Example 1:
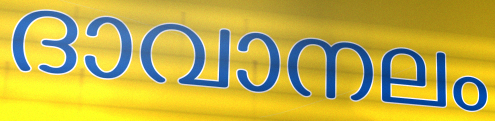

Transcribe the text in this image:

ദാവാനലം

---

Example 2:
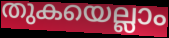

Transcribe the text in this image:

തുകയെല്ലാം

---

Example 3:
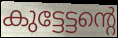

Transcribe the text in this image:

കുട്ടേട്ടന്റെ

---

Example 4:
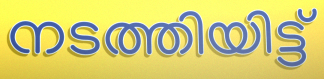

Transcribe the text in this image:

നടത്തിയിട്ട്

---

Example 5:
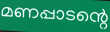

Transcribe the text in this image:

മണപ്പാടന്റെ